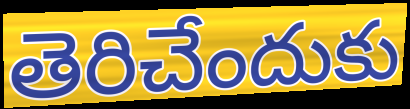
తెరిచేందుకు